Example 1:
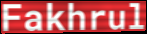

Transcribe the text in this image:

Fakhrul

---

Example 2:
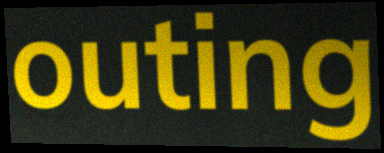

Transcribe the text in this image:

outing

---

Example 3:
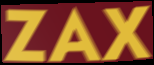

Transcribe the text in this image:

ZAX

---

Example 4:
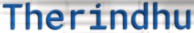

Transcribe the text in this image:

Therindhu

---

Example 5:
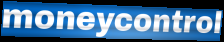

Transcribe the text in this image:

moneycontrol